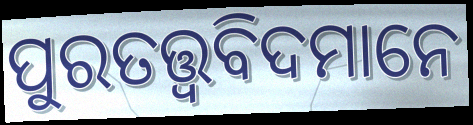
ପୁରତତ୍ତ୍ୱବିଦମାନେ